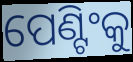
ପେଣ୍ଟିଂକୁ